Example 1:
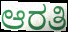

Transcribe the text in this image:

ಆರತಿ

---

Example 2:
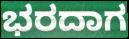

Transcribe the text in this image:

ಭರದಾಗ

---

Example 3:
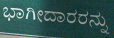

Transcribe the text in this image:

ಭಾಗೀದಾರರನ್ನು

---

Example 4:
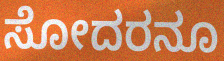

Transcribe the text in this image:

ಸೋದರನೂ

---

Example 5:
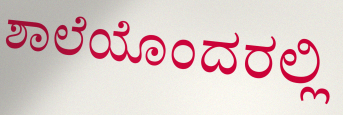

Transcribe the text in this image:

ಶಾಲೆಯೊಂದರಲ್ಲಿ